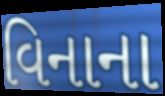
વિનાના